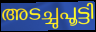
അടച്ചുപൂട്ടി